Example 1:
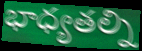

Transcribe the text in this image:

భాధ్యతల్ని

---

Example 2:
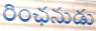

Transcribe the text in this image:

రింఛనుడు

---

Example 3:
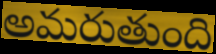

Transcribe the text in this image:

అమరుతుంది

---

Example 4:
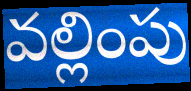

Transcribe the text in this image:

వల్లింపు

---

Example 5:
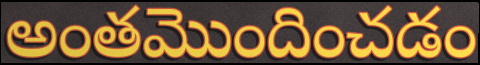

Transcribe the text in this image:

అంతమొందించడం